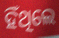
ହିଁଥିଲେ